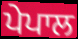
ਪੇਪਾਲ